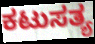
ಕಟುಸತ್ಯ